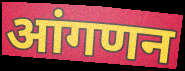
आंगणन